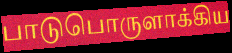
பாடுபொருளாக்கிய